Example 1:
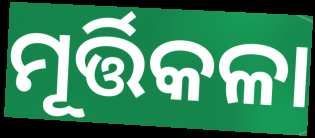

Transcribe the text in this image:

ମୂର୍ତ୍ତିକଳା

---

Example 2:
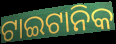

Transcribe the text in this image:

ଟାଇଟାନିକ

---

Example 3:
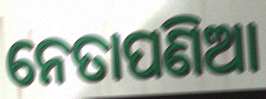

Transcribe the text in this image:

ନେତାପଣିଆ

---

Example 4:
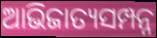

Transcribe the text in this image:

ଆଭିଜାତ୍ୟସମ୍ପନ୍ନ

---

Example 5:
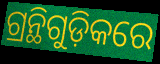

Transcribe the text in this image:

ଗ୍ରନ୍ଥିଗୁଡ଼ିକରେ